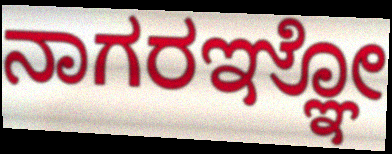
ನಾಗರಞ್ಞೋ